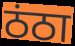
ठंठा